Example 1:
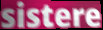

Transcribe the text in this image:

sistere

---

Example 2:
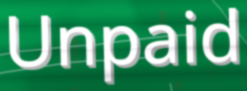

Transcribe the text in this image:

Unpaid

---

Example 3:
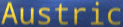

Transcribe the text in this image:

Austric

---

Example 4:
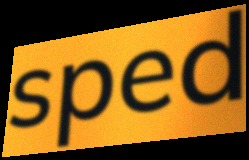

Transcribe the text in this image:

sped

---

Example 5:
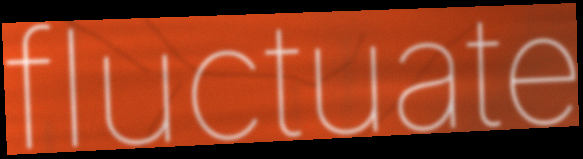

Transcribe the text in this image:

fluctuate